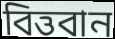
বিত্তবান